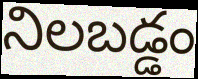
నిలబడ్డం